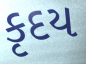
કૃદય